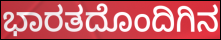
ಭಾರತದೊಂದಿಗಿನ